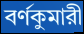
বর্ণকুমারী